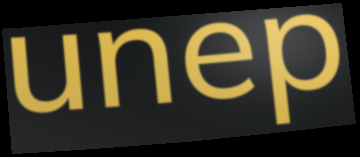
unep